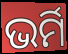
ଭର୍ମି